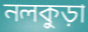
নলকুড়া